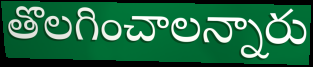
తొలగించాలన్నారు